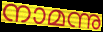
നാമന്നു